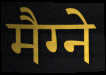
मैग्ने